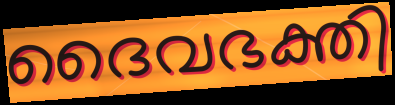
ദൈവഭക്തി